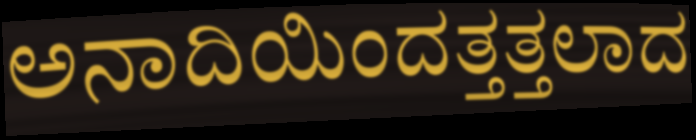
ಅನಾದಿಯಿಂದತ್ತತ್ತಲಾದ